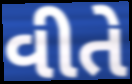
વીતે